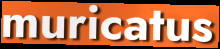
muricatus